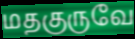
மதகுருவே